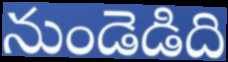
నుండెడిది